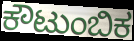
ಕೌಟುಂಬಿಕ